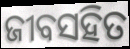
ଜୀବସହିତ